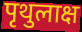
पृथुलाक्ष